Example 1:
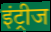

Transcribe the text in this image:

इंट्रीज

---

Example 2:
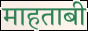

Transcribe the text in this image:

माहताबी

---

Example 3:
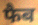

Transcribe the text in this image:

फैब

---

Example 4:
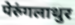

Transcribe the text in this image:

पेरुंगलाथुर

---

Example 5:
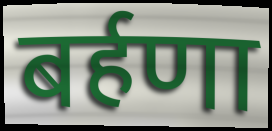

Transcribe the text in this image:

बर्हणा